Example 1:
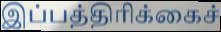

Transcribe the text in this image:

இப்பத்திரிக்கைச்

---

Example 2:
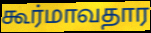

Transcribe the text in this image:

கூர்மாவதார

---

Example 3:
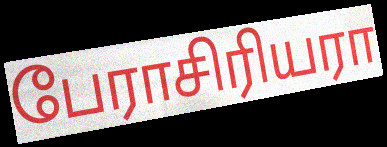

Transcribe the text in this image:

பேராசிரியரா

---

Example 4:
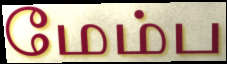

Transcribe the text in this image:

மேம்ப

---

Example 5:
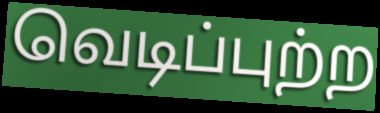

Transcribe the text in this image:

வெடிப்புற்ற